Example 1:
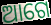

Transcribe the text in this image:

ଆଗେ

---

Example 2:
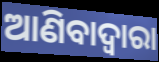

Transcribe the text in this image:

ଆଣିବାଦ୍ୱାରା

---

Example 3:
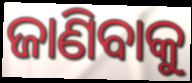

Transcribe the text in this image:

ଜାଣିବାକୁ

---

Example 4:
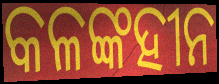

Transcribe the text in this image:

କଳଙ୍କହୀନ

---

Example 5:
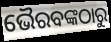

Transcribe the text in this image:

ଭୈରବଙ୍କଠାରୁ